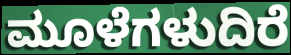
ಮೂಳೆಗಳುದಿರೆ